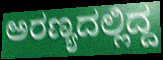
ಅರಣ್ಯದಲ್ಲಿದ್ದ